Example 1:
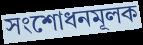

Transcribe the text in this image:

সংশোধনমূলক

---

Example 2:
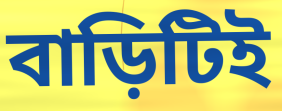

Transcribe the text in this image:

বাড়িটিই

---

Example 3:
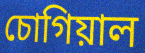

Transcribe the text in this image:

চোগিয়াল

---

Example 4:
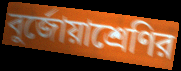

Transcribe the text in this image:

বুর্জোয়াশ্রেণির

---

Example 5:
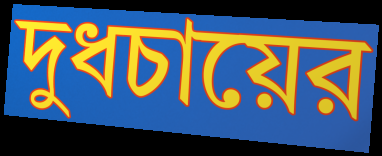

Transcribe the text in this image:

দুধচায়ের